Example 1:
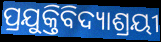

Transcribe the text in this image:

ପ୍ରଯୁକ୍ତିବିଦ୍ୟାଶ୍ରୟୀ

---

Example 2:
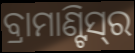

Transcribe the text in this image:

ବ୍ରାମାଣ୍ଟିସ୍‌ର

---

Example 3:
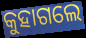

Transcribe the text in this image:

କୁହାଗଲେ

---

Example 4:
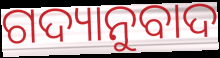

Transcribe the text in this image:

ଗଦ୍ୟାନୁବାଦ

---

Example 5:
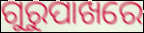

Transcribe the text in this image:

ଗୁରୁପାଖରେ